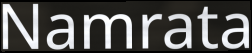
Namrata